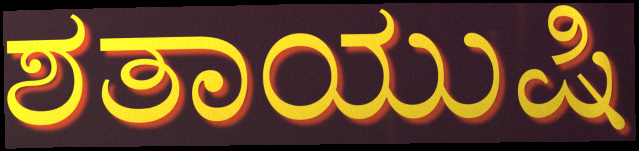
ಶತಾಯುಷಿ